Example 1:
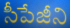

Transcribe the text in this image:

సీపేజీని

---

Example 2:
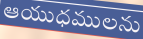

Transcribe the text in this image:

ఆయుధములను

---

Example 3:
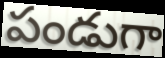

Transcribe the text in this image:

పండుగా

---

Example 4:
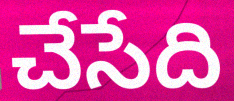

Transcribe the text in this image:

చేసేది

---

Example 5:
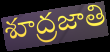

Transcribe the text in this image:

శూద్రజాతి